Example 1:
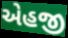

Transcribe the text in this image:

એહજી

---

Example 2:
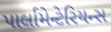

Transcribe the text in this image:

પાર્લામેન્ટેરિયન્સ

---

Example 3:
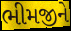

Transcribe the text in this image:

ભીમજીને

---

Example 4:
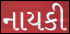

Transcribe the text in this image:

નાયકી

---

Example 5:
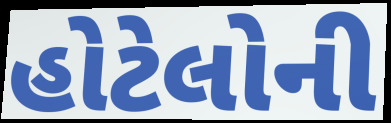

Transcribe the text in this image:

હોટેલોની